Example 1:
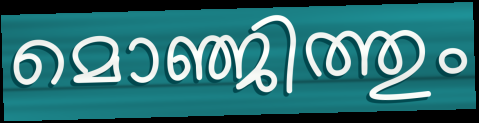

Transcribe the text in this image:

മൊഞ്ജിത്തും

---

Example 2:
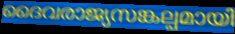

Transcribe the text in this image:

ദൈവരാജ്യസങ്കല്പമായി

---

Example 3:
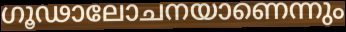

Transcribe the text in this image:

ഗൂഢാലോചനയാണെന്നും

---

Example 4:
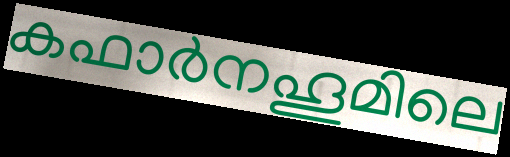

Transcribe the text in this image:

കഫാർനഹൂമിലെ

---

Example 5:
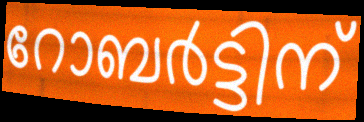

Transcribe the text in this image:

റോബർട്ടിന്